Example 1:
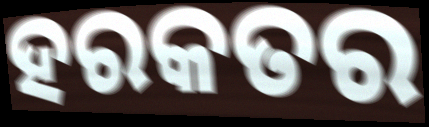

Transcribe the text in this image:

ହରକତର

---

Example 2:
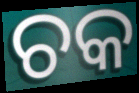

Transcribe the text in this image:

ଚକ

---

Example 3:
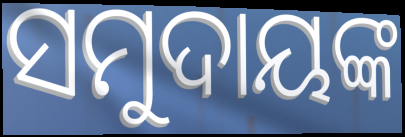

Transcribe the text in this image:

ସମୁଦାୟଙ୍କ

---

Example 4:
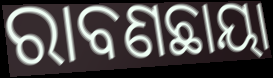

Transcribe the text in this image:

ରାବଣଛାୟା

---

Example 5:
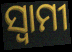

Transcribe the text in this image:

ସ୍ବାମୀ